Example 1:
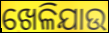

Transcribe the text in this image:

ଖେଳିଯାଉ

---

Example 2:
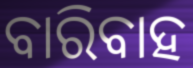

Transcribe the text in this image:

ବାରିବାହ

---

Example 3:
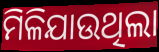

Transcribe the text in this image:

ମିଳିଯାଉଥିଲା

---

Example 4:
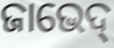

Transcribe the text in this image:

ଜାଭେଦ୍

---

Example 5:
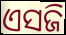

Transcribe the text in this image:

ଏସଜି